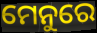
ମେନୁରେ